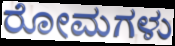
ರೋಮಗಳು